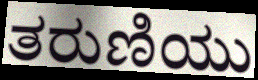
ತರುಣಿಯು